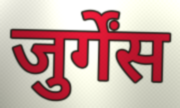
जुर्गेंस